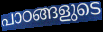
പാഠങ്ങളുടെ